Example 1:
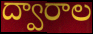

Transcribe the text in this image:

ద్వారాల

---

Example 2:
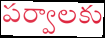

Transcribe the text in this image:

పర్వాలకు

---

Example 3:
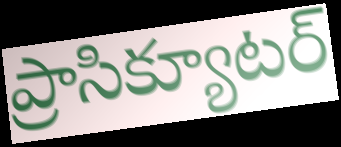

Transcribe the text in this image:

ప్రాసిక్యూటర్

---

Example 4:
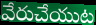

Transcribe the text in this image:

వేరుచేయుట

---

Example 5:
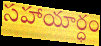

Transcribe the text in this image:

సహాయార్ధం